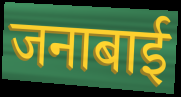
जनाबाई